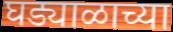
घड्याळाच्या